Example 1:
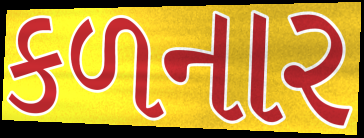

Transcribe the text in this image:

કળનાર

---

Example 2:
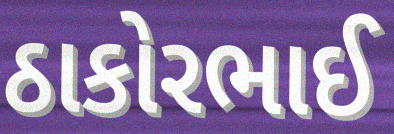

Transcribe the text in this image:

ઠાકોરભાઈ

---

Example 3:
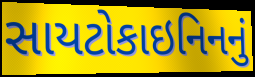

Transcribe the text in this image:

સાયટોકાઇનિનનું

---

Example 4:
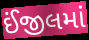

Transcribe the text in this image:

ઈંજીલમાં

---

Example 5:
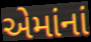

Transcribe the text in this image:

એમાંનાં